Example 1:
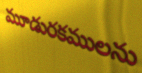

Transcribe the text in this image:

మూడురకములను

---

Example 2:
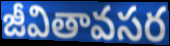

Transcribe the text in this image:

జీవితావసర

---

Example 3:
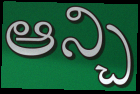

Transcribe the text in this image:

ఆన్చి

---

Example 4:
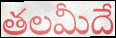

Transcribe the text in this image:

తలమీదే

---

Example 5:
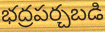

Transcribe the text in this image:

భద్రపర్చబడి